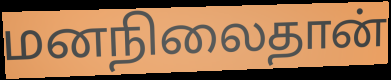
மனநிலைதான்